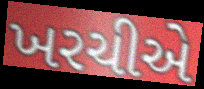
ખરચીએ